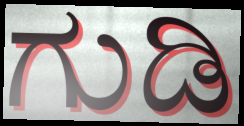
ಗುಡಿ